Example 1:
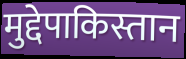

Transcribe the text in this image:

मुद्देपाकिस्तान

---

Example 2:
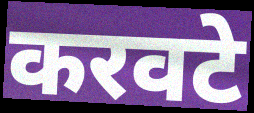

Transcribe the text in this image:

करवटे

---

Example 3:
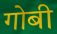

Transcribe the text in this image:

गोबी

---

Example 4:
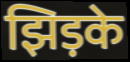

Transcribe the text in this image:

झिड़के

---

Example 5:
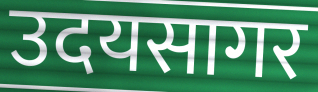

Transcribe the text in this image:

उदयसागर